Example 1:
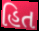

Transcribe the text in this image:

હિત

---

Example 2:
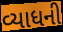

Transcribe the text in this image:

વ્યાધની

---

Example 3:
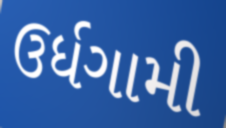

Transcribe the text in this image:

ઉર્ધગામી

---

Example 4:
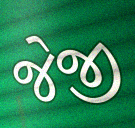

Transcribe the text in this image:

જેજી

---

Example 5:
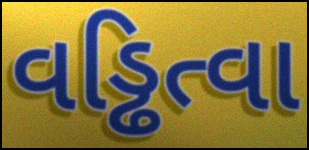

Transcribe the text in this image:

વડ્ઢિત્વા